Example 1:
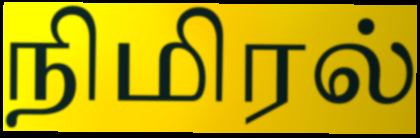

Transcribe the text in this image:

நிமிரல்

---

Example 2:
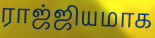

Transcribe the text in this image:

ராஜ்ஜியமாக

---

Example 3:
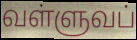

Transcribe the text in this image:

வள்ளுவப்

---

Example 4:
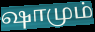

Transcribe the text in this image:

ஷாமும்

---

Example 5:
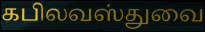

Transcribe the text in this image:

கபிலவஸ்துவை